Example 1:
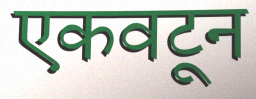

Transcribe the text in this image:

एकवटून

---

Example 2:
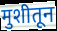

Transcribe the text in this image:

मुशीतून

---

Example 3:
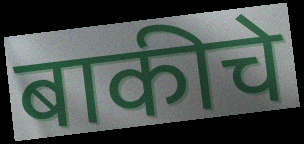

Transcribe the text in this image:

बाकीचे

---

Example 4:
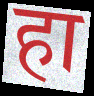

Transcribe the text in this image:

हा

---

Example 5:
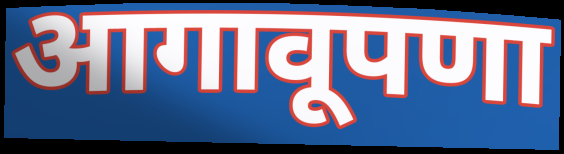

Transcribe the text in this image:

आगावूपणा